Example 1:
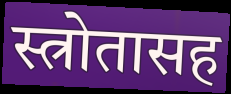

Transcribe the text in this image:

स्त्रोतासह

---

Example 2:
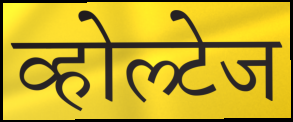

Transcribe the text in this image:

व्होल्टेज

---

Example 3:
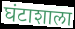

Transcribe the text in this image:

घंटाशाला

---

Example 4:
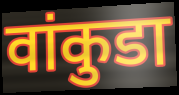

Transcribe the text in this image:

वांकुडा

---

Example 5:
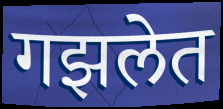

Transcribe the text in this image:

गझलेत